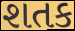
શતક